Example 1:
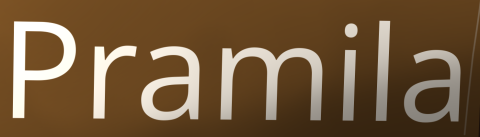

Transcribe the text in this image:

Pramila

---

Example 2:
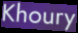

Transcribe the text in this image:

Khoury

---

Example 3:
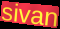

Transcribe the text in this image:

sivan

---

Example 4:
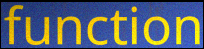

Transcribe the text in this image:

function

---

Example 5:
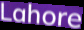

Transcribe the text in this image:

Lahore